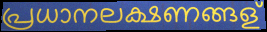
പ്രധാനലക്ഷണങ്ങള്